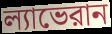
ল্যাভেরান